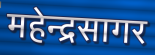
महेन्द्रसागर